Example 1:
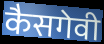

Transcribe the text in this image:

कैसगेवी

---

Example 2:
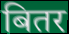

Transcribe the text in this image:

बितर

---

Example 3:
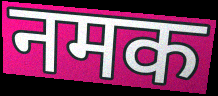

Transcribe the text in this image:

नमक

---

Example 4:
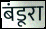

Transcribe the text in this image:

बंडूरा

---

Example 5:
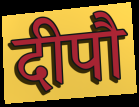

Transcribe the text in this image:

दीपौ